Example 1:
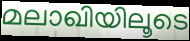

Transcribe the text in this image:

മലാഖിയിലൂടെ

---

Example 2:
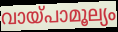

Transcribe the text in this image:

വായ്പാമൂല്യം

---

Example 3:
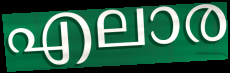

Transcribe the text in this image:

എലാര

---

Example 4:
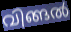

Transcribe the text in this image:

വിങ്ങൽ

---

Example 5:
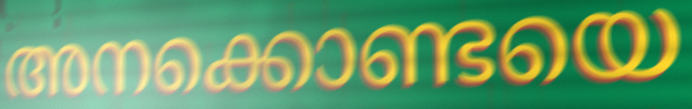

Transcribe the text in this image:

അനക്കൊണ്ടയെ